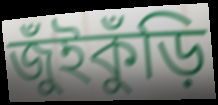
জুঁইকুঁড়ি